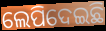
ଲେପିଦେଇଛି